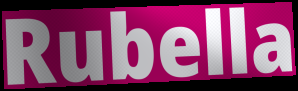
Rubella